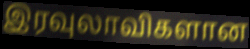
இரவுலாவிகளான